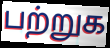
பற்றுக